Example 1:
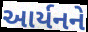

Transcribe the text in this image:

આર્યનને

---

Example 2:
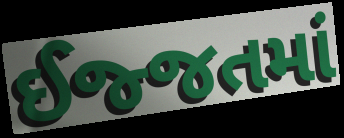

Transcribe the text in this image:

ઈજ્જતમાં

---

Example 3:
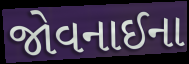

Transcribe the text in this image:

જોવનાઈના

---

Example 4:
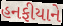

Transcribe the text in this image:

હનફીયાને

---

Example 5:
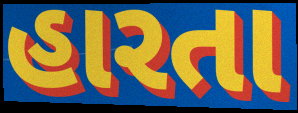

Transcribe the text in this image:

હારતા